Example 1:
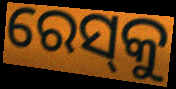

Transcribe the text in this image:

ରେସ୍‌କୁ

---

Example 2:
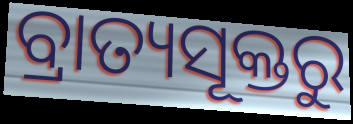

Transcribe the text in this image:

ବ୍ରାତ୍ୟସୂକ୍ତରୁ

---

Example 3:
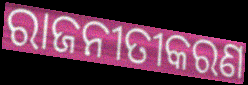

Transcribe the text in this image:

ରାଜନୀତୀକରଣ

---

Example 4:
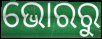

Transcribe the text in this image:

ଭୋରରୁ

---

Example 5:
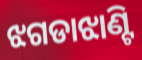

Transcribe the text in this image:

ଝଗଡାଝାଣ୍ଟି